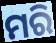
ମରି